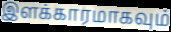
இளக்காரமாகவும்